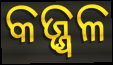
କଜ୍ଜ୍ୱଳ